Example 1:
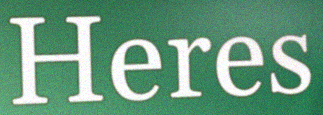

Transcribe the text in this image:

Heres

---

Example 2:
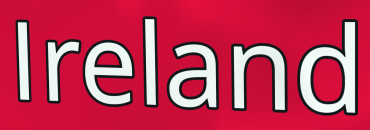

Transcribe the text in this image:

Ireland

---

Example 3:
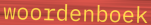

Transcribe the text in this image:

woordenboek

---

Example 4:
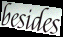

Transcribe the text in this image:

besides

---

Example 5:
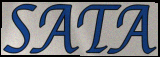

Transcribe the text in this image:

SATA